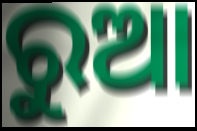
ରୁଆ